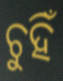
ଚୁହିଁ